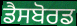
ਡੈਸਬੋਰਡ